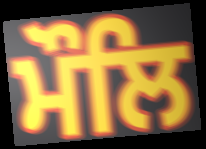
ਮੌਲਿ